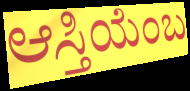
ಆಸ್ತಿಯೆಂಬ